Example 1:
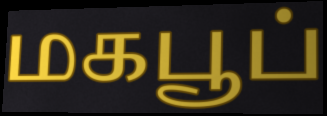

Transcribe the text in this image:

மகபூப்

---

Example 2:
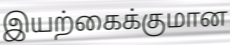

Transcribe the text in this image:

இயற்கைக்குமான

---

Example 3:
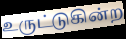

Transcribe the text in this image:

உருட்டுகின்ற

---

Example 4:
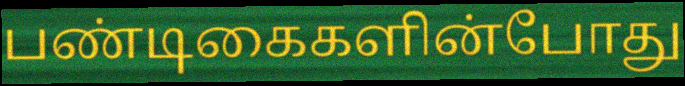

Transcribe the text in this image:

பண்டிகைகளின்போது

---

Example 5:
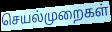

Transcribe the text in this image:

செயல்முறைகள்